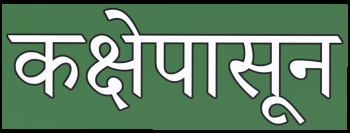
कक्षेपासून